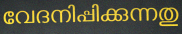
വേദനിപ്പിക്കുന്നതു